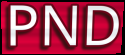
PND